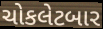
ચોકલેટબાર